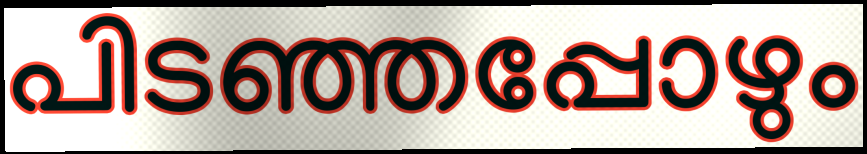
പിടഞ്ഞപ്പോഴും